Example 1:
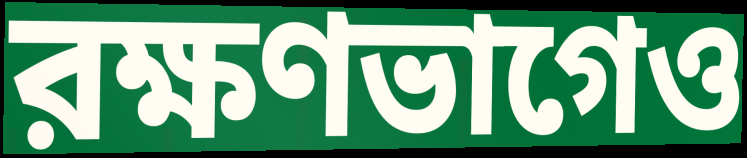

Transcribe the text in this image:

রক্ষণভাগেও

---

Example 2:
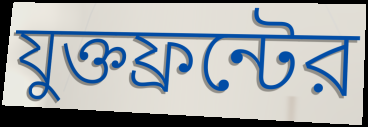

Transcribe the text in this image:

যুক্তফ্রন্টের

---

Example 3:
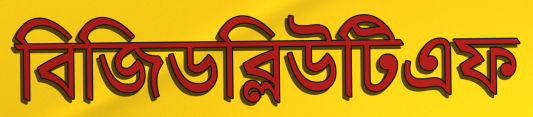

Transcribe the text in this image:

বিজিডব্লিউটিএফ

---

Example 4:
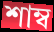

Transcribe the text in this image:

শাম্ব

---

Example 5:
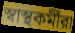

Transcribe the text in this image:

স্বাস্থকর্মীরা